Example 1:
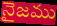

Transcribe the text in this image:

నైజము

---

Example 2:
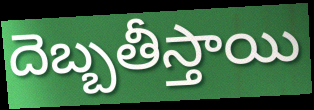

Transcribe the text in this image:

దెబ్బతీస్తాయి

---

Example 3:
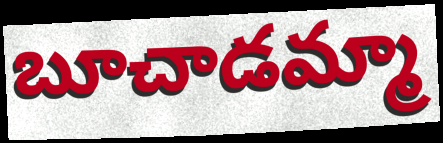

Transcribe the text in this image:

బూచాడమ్మా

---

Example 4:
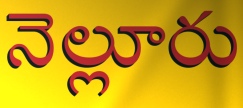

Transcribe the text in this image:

నెల్లూరు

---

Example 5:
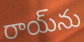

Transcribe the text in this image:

రాయ్‌ను